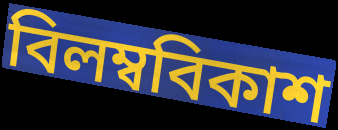
বিলম্ববিকাশ